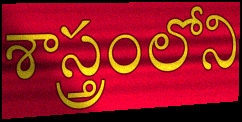
శాస్త్రంలోని